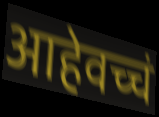
आहेवच्चं